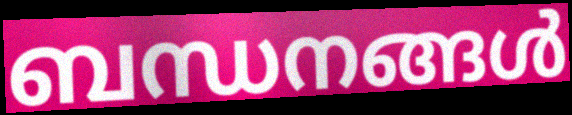
ബന്ധനങ്ങൾ